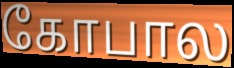
கோபால